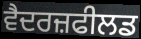
ਵੈਦਰਜ਼ਫੀਲਡ